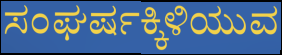
ಸಂಘರ್ಷಕ್ಕಿಳಿಯುವ